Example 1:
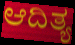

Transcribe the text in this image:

ಆದಿತ್ಯ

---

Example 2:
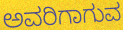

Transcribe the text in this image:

ಅವರಿಗಾಗುವ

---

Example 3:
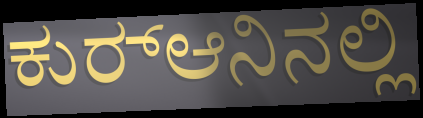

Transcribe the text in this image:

ಕುರ್‍ಆನಿನಲ್ಲಿ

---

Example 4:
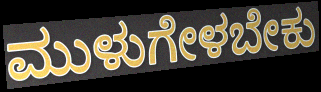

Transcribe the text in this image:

ಮುಳುಗೇಳಬೇಕು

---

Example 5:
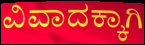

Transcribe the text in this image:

ವಿವಾದಕ್ಕಾಗಿ